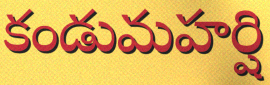
కండుమహర్షి